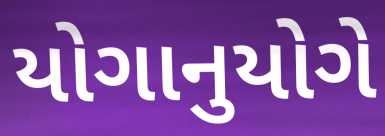
યોગાનુયોગે